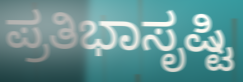
ಪ್ರತಿಭಾಸೃಷ್ಟಿ